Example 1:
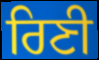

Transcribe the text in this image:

ਰਿਣੀ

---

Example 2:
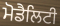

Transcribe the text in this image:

ਮੋਡੈਲਿਟੀ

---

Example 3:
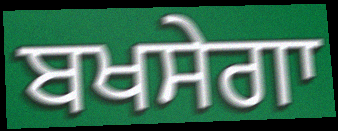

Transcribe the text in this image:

ਬਖਸੇਗਾ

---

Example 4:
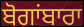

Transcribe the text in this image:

ਬੋਗਾਂਬਾਰਾ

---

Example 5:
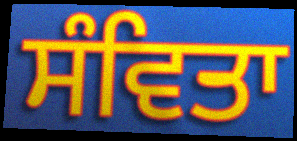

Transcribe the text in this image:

ਸੰਵਿਤਾ